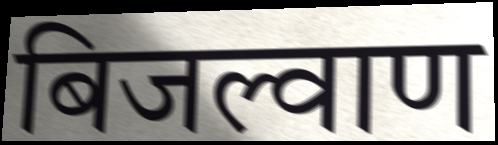
बिजल्वाण